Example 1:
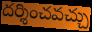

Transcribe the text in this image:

దర్శించవచ్చు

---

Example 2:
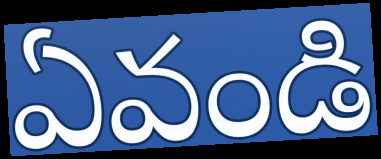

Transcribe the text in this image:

ఏవండి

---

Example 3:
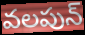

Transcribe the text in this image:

వలపున్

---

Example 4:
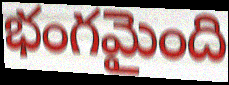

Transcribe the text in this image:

భంగమైంది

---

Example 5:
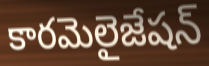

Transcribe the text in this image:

కారమెలైజేషన్